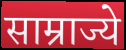
साम्राज्ये